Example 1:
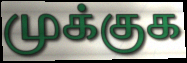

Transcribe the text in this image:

முக்குக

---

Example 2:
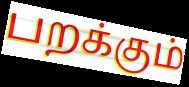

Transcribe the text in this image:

பறக்கும்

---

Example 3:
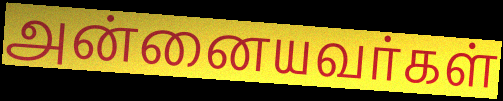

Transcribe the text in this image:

அன்னையவர்கள்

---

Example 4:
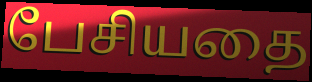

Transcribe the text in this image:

பேசியதை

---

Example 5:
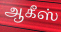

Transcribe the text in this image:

ஆகீஸ்